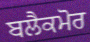
ਬਲੈਕਮੋਰ